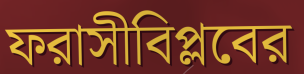
ফরাসীবিপ্লবের